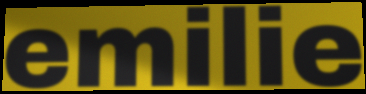
emilie